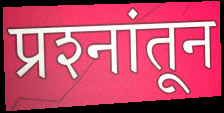
प्रश्नांतून